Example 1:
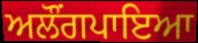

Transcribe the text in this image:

ਅਲੌਂਗਪਾਇਆ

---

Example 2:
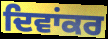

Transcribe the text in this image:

ਦਿਵਾਂਕਰ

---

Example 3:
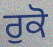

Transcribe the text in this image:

ਰੁਕੋ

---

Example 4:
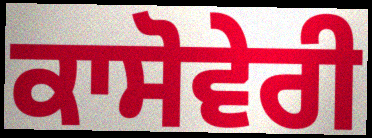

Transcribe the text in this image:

ਕਾਸੋਵੇਰੀ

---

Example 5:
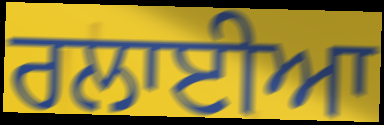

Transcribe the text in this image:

ਰਲਾਈਆ